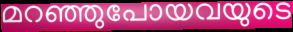
മറഞ്ഞുപോയവയുടെ